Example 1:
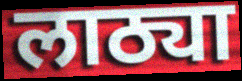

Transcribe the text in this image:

लाठ्या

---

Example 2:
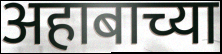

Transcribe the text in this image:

अहाबाच्या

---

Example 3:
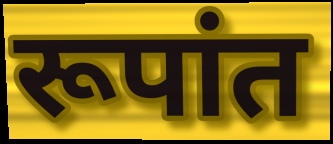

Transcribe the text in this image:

रूपांत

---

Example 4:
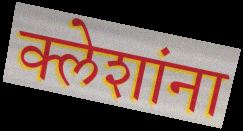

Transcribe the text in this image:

क्लेशांना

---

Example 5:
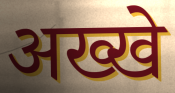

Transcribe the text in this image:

अख्खे